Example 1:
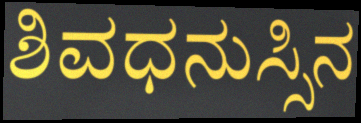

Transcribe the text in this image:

ಶಿವಧನುಸ್ಸಿನ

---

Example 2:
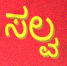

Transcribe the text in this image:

ಸಲ್ವ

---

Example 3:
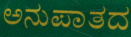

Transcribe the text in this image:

ಅನುಪಾತದ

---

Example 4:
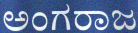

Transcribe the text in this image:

ಅಂಗರಾಜ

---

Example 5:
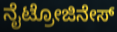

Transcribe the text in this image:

ನೈಟ್ರೋಜಿನೇಸ್